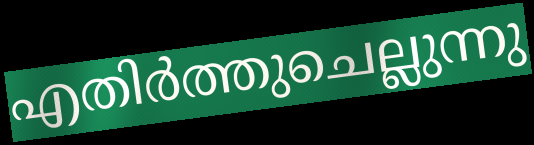
എതിർത്തുചെല്ലുന്നു